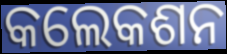
କଲେକଶନ